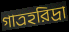
গাত্রহরিদ্রা